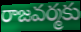
రాజవర్మకు